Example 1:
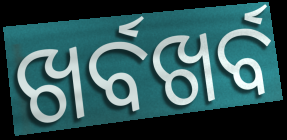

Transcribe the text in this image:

ଖର୍ବଖର୍ବ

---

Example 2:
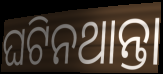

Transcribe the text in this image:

ଘଟିନଥାନ୍ତା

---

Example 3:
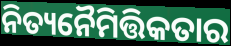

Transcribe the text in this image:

ନିତ୍ୟନୈମିତ୍ତିକତାର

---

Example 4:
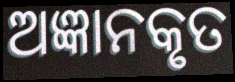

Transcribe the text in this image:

ଅଜ୍ଞାନକୃତ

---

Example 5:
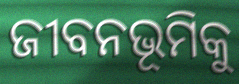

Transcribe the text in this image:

ଜୀବନଭୂମିକୁ